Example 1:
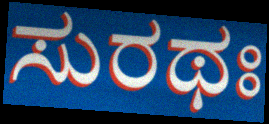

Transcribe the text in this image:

ಸುರಥಃ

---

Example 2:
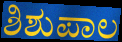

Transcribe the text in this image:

ಶಿಶುಪಾಲ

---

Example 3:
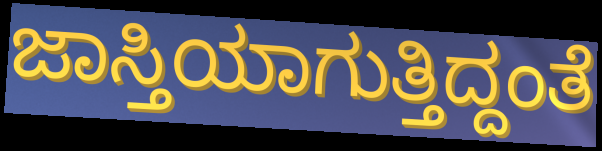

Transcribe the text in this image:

ಜಾಸ್ತಿಯಾಗುತ್ತಿದ್ದಂತೆ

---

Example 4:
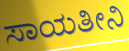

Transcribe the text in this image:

ಸಾಯತೀನಿ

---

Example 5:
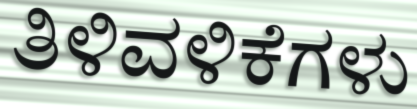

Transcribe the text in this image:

ತಿಳಿವಳಿಕೆಗಳು